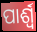
ପାର୍ଶ୍ୱ